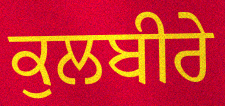
ਕੁਲਬੀਰੇ